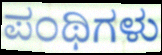
ಪಂಥಿಗಳು